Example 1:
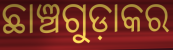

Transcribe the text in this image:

ଛାଞ୍ଚଗୁଡ଼ାକର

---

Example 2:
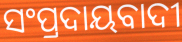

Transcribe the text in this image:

ସଂପ୍ରଦାୟବାଦୀ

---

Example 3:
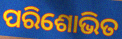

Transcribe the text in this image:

ପରିଶୋଭିତ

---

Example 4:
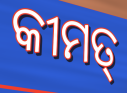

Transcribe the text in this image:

କୀମତ୍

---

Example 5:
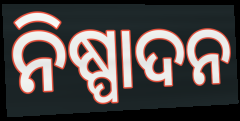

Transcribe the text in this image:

ନିଷ୍ପାଦନ